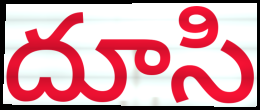
దూసి